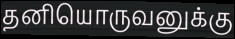
தனியொருவனுக்கு